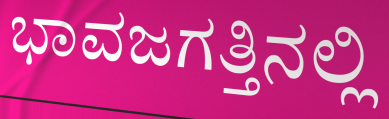
ಭಾವಜಗತ್ತಿನಲ್ಲಿ